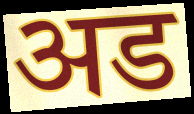
अड